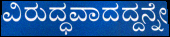
ವಿರುದ್ಧವಾದದ್ದನ್ನೇ